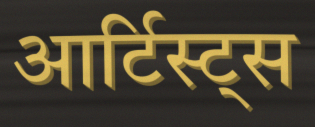
आर्टिस्ट्स